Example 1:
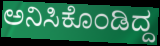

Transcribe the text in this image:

ಅನಿಸಿಕೊಂಡಿದ್ದ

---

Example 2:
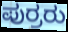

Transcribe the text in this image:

ಪುರ್ರರು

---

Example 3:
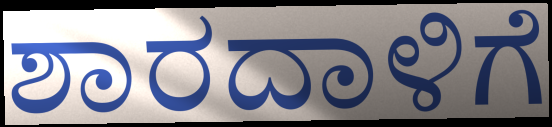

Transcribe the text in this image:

ಶಾರದಾಳಿಗೆ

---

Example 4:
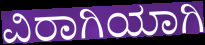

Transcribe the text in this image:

ವಿರಾಗಿಯಾಗಿ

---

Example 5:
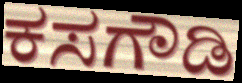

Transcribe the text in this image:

ಕಸಗೌಡಿ